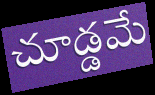
చూడ్డమే